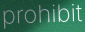
prohibit